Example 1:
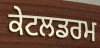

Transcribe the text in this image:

ਕੇਟਲਡਰਮ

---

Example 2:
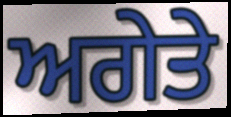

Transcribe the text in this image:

ਅਗੇਤੇ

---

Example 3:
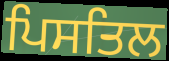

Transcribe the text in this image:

ਪਿਸਤਿਲ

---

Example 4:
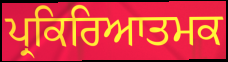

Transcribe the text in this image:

ਪ੍ਰਕਿਰਿਆਤਮਕ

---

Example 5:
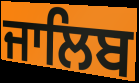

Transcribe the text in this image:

ਜਾਲਿਬ